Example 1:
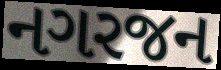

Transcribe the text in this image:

નગરજન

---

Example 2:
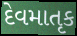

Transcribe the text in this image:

દેવમાતૃક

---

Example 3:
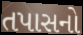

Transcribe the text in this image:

તપાસનો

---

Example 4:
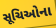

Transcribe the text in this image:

સૂચિઓના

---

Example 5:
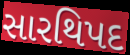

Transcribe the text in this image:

સારથિપદ